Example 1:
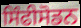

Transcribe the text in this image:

ਸਿੰਫੀਸੋਡਨ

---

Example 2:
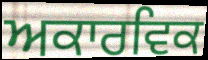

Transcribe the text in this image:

ਅਕਾਰਵਿਕ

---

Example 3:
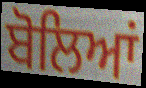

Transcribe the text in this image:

ਬੋਲਿਆਂ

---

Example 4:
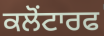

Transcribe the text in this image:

ਕਲੋਂਟਾਰਫ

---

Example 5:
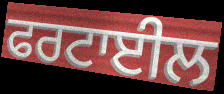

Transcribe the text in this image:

ਫਰਟਾਈਲ